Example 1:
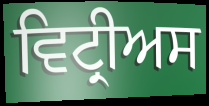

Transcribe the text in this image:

ਵਿਟ੍ਰੀਅਸ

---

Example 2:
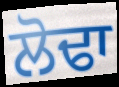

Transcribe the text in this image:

ਲੋਢਾ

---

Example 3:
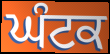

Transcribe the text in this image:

ਘੰਟਕ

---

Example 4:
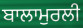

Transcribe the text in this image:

ਬਾਲਾਮੁਰਲੀ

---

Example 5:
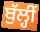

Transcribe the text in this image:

ਬੁੱਲ੍ਹੀਂ